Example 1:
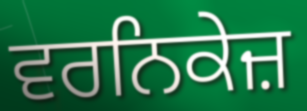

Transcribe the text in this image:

ਵਰਨਿਕੇਜ਼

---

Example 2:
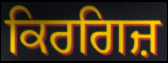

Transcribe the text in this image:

ਕਿਰਗਿਜ਼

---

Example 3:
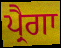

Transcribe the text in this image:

ਪ੍ਰੈਗਾ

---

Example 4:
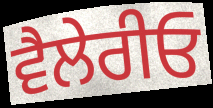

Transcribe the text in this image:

ਵੈਲੇਰੀਓ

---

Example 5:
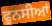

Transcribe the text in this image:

ਫੁਨਸੀਆਂ